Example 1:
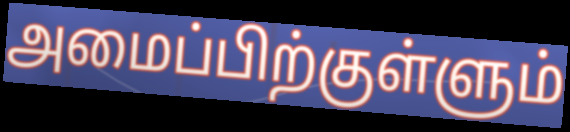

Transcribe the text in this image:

அமைப்பிற்குள்ளும்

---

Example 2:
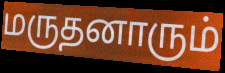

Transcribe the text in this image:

மருதனாரும்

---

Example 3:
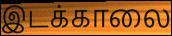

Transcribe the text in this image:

இடக்காலை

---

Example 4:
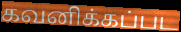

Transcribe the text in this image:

கவனிக்கப்பட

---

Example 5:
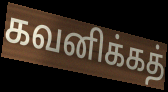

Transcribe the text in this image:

கவனிக்கத்